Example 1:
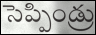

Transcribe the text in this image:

సెప్పిండ్రు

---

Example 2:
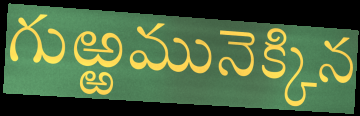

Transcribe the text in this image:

గుఱ్ఱమునెక్కిన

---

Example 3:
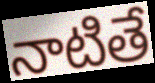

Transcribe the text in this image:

నాటితే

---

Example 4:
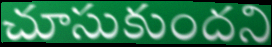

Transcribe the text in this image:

చూసుకుందని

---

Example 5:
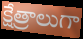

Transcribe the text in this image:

క్షేత్రాలుగా